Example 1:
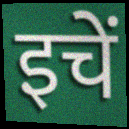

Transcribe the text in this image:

इचें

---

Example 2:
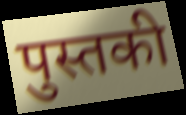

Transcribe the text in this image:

पुस्तकी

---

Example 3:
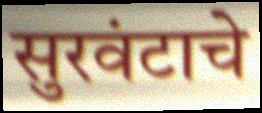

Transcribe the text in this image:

सुरवंटाचे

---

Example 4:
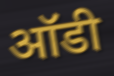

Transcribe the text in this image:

ऑडी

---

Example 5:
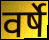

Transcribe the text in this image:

वर्षे